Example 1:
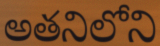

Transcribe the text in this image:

అతనిలోని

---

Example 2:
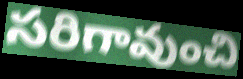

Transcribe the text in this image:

సరిగావుంచి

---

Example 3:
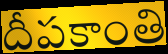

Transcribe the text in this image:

దీపకాంతి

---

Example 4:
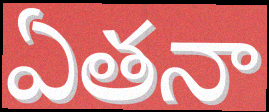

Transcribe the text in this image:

ఏతనా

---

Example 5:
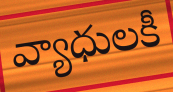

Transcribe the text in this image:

వ్యాధులకీ